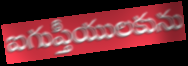
ఐగుప్తీయులకును